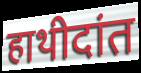
हाथीदांत